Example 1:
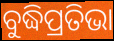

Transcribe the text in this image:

ବୁଦ୍ଧିପ୍ରତିଭା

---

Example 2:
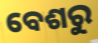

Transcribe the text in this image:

ବେଶରୁ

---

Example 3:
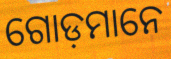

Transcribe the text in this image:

ଗୋଡ଼ମାନେ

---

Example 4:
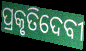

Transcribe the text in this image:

ପ୍ରକୃତିଦେବୀ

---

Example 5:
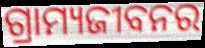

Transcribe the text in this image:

ଗ୍ରାମ୍ୟଜୀବନର